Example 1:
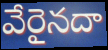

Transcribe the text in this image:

వేరైనదా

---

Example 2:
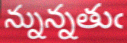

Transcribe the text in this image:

న్నున్నతుఁ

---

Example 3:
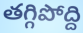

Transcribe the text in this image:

తగ్గిపోద్ది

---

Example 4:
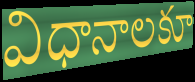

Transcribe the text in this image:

విధానాలకూ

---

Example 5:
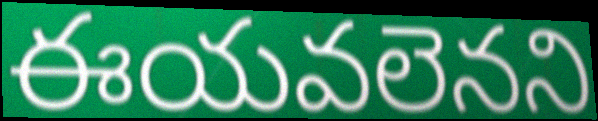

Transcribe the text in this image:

ఈయవలెనని